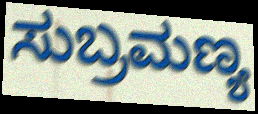
ಸುಬ್ರಮಣ್ಯ